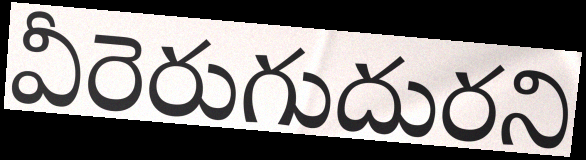
వీరెరుగుదురని